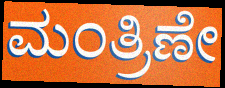
ಮಂತ್ರಿಣೇ